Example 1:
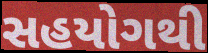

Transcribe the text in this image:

સહયોગથી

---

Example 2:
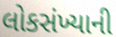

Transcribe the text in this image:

લોકસંખ્યાની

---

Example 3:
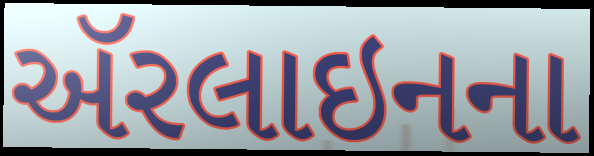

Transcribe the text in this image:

ઍરલાઇનના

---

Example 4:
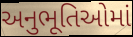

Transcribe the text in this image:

અનુભૂતિઓમાં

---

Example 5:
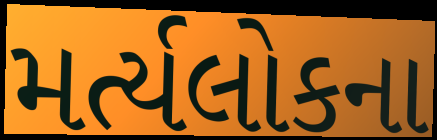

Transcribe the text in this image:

મર્ત્યલોકના